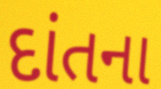
દાંતના